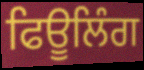
ਫਿਊਲਿੰਗ